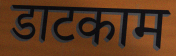
डाटकाम